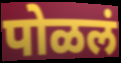
पोळलं